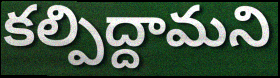
కల్పిద్దామని